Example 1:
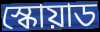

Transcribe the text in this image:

স্কোয়াড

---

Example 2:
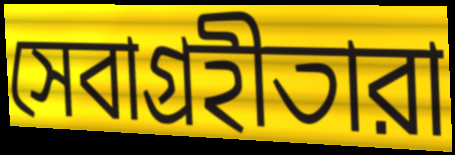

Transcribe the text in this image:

সেবাগ্রহীতারা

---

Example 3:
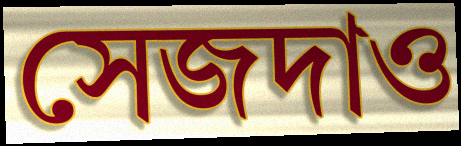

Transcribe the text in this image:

সেজদাও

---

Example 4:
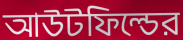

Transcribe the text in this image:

আউটফিল্ডের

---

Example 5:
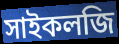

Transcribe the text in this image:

সাইকলজি